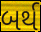
બર્થ